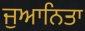
ਜੁਆਨਿਤਾ